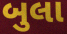
બુલા